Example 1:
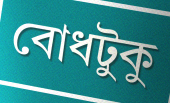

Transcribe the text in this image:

বোধটুকু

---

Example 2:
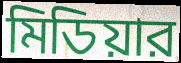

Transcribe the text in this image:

মিডিয়ার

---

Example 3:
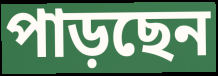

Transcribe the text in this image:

পাড়ছেন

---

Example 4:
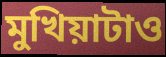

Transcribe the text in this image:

মুখিয়াটাও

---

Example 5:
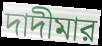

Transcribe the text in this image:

দাদীমার